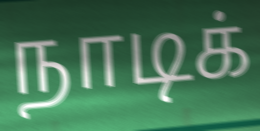
நாடிக்